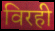
विरही